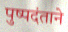
पुष्पदंताने